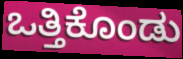
ಒತ್ತಿಕೊಂಡು